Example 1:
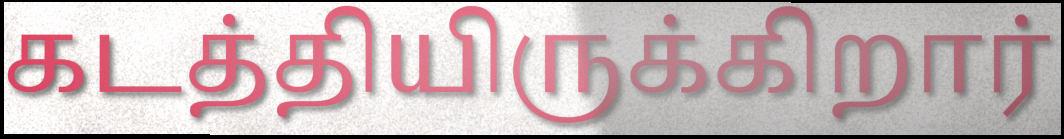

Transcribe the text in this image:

கடத்தியிருக்கிறார்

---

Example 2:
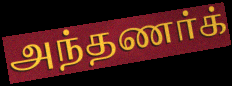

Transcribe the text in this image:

அந்தணர்க்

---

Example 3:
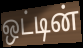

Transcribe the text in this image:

ஒட்டின்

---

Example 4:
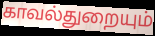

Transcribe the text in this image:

காவல்துறையும்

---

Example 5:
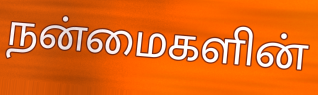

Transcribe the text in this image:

நன்மைகளின்